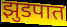
झुडपात